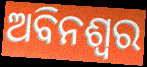
ଅବିନଶ୍ଵର